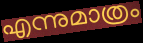
എന്നുമാത്രം